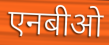
एनबीओ